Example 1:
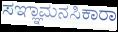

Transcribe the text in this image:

ಸಞ್ಞಾಮನಸಿಕಾರಾ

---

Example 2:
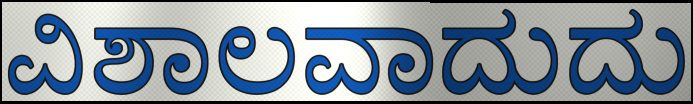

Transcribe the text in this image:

ವಿಶಾಲವಾದುದು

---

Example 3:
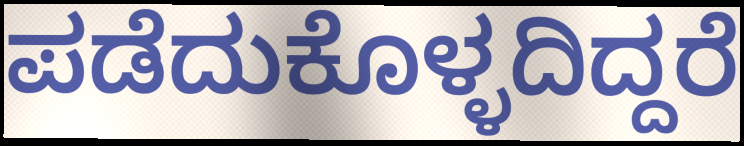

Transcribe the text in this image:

ಪಡೆದುಕೊಳ್ಳದಿದ್ದರೆ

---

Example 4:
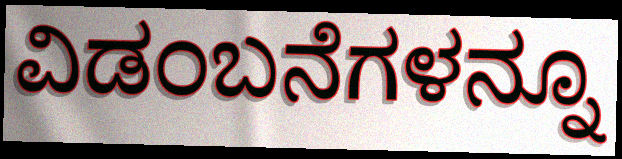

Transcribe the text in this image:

ವಿಡಂಬನೆಗಳನ್ನೂ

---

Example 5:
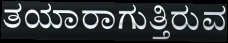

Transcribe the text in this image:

ತಯಾರಾಗುತ್ತಿರುವ